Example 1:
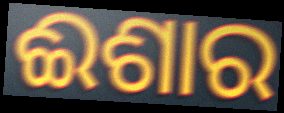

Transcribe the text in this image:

ଈଶାର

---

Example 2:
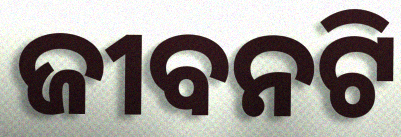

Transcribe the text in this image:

ଜୀବନଟି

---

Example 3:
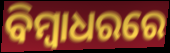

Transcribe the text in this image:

ବିମ୍ୱାଧରରେ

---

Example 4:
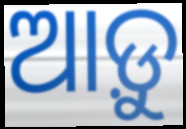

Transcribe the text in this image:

ଆଡ଼ୁ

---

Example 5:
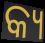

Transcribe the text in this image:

କ୍ୟ